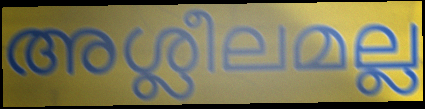
അശ്ലീലമല്ല